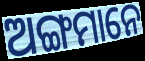
ଅଙ୍ଗମାନେ